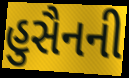
હુસૈનની